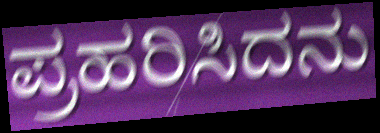
ಪ್ರಹರಿಸಿದನು